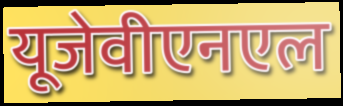
यूजेवीएनएल